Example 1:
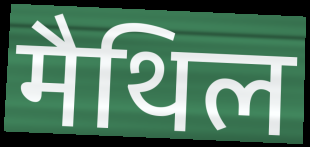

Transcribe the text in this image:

मैथिल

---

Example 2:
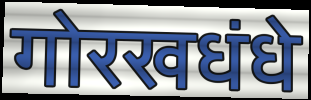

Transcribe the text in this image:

गोरखधंधे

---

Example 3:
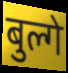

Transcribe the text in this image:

बुल्गे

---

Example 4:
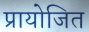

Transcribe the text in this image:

प्रायोजित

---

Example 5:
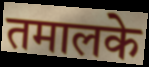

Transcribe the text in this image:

तमालके